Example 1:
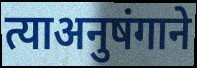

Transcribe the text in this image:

त्याअनुषंगाने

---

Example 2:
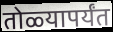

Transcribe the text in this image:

तोळ्यापर्यंत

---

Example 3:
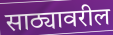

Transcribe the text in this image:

साठ्यावरील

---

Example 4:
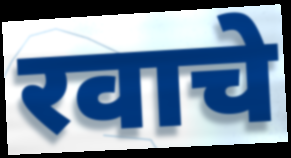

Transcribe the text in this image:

रवाचे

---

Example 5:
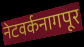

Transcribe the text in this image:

नेटवर्कनागपूर